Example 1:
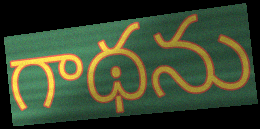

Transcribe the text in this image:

గాథను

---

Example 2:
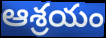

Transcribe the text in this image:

ఆశ్రయం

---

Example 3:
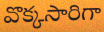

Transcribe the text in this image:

వొక్కసారిగా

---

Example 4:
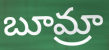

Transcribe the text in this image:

బూమ్రా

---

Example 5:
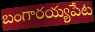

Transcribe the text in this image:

బంగారయ్యపేట